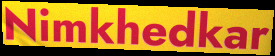
Nimkhedkar